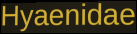
Hyaenidae